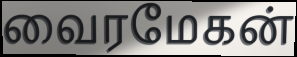
வைரமேகன்